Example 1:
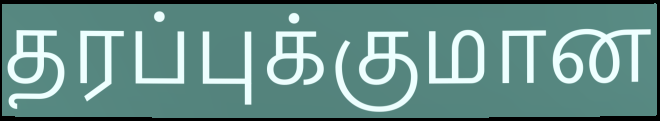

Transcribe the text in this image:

தரப்புக்குமான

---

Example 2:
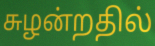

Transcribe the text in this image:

சுழன்றதில்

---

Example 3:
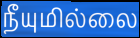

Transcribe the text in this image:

நீயுமில்லை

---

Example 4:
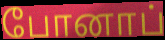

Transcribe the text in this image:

போனாப்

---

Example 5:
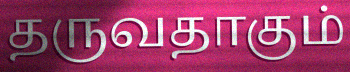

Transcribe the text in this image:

தருவதாகும்